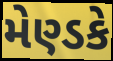
મેણ્ડકે